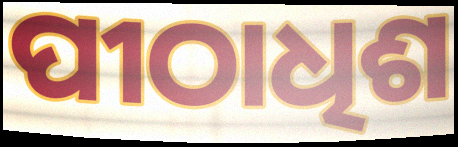
ପୀଠାଧିଶ